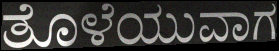
ತೊಳೆಯುವಾಗ